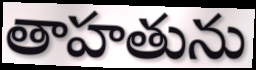
తాహతును